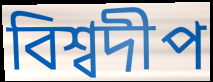
বিশ্বদীপ